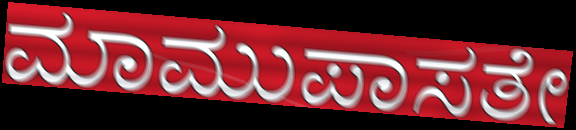
ಮಾಮುಪಾಸತೇ